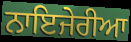
ਨਾਇਜੇਰੀਆ